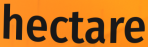
hectare